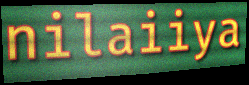
nilaiiya